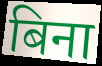
बिना